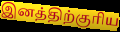
இனத்திற்குரிய